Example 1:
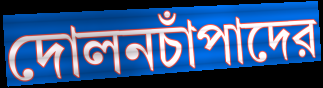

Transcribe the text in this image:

দোলনচাঁপাদের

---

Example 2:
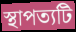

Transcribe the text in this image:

স্থাপত্যটি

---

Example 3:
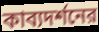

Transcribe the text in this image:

কাব্যদর্শনের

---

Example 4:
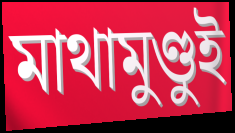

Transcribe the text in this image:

মাথামুণ্ডুই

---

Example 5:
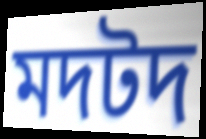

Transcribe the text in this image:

মদটদ